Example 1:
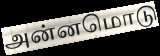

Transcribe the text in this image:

அன்னமொடு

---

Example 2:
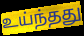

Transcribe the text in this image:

உய்ந்தது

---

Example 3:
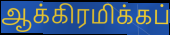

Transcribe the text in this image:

ஆக்கிரமிக்கப்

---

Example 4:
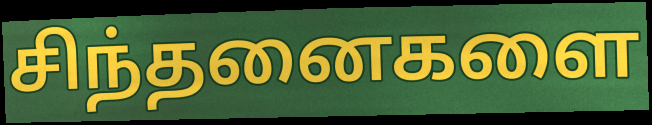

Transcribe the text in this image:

சிந்தனைகளை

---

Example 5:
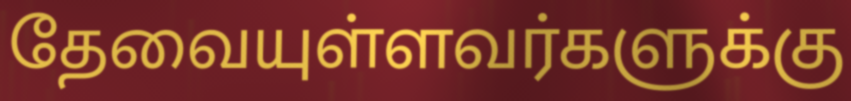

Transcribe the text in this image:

தேவையுள்ளவர்களுக்கு